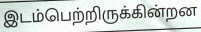
இடம்பெற்றிருக்கின்றன